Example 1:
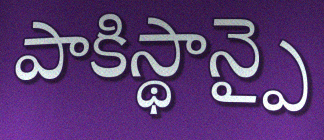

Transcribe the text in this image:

పాకిస్థాన్పై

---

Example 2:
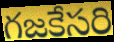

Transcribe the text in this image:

గజకేసరి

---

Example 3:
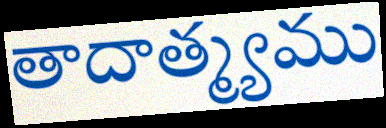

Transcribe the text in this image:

తాదాత్మ్యము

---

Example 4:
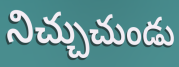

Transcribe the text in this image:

నిచ్చుచుండు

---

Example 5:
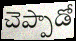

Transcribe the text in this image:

చెప్పాడో